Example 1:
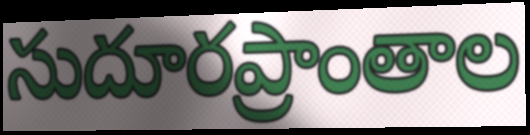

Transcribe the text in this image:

సుదూరప్రాంతాల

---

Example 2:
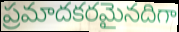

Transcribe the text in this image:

ప్రమాదకరమైనదిగా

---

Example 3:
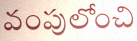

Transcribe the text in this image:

వంపులోంచి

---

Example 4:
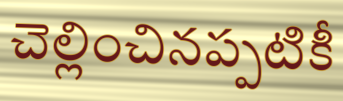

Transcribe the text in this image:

చెల్లించినప్పటికీ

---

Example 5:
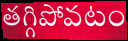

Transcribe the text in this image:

తగ్గిపోవటం